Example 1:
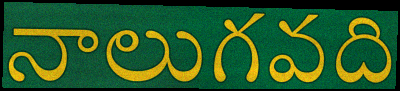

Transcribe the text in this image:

నాలుగవది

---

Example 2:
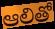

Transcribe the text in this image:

ఆలితో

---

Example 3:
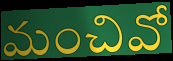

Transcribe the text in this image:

మంచివో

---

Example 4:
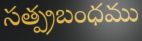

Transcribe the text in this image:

సత్ప్రబంధము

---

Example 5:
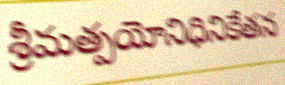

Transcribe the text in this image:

శ్రీమత్పయోనిధినికేతన